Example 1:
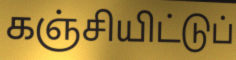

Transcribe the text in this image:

கஞ்சியிட்டுப்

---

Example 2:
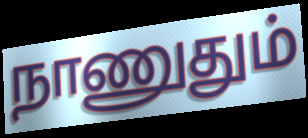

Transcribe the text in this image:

நாணுதும்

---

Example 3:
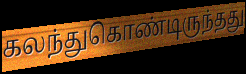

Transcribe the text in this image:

கலந்துகொண்டிருந்தது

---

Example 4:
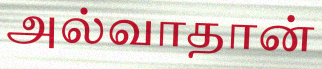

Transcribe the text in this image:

அல்வாதான்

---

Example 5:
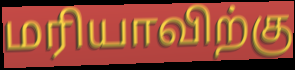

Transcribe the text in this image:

மரியாவிற்கு